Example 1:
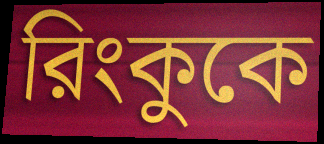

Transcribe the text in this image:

রিংকুকে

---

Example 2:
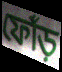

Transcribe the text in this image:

ফোঁড়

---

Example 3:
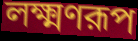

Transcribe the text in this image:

লক্ষ্মণরূপ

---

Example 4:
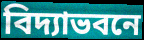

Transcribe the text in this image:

বিদ্যাভবনে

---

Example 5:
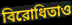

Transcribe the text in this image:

বিরোধিতাও